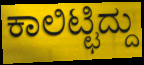
ಕಾಲಿಟ್ಟಿದ್ದು